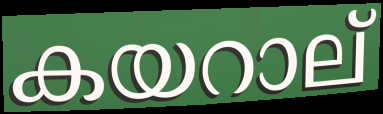
കയറാല്